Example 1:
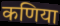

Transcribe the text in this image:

कणिया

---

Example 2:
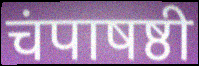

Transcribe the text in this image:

चंपाषष्ठी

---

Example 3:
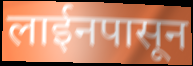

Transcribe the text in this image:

लाईनपासून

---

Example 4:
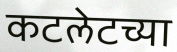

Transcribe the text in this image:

कटलेटच्या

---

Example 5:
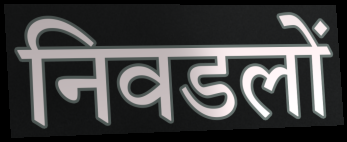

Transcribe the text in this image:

निवडलों